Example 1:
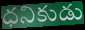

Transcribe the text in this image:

ధనికుడు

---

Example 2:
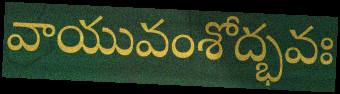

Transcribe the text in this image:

వాయువంశోద్భవః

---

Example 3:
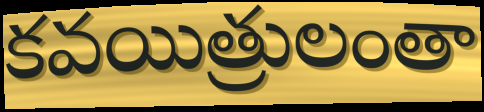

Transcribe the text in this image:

కవయిత్రులంతా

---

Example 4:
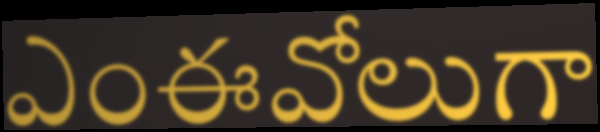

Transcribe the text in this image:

ఎంఈవోలుగా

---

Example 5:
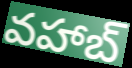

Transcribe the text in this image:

వహాబ్